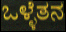
ಒಳ್ಳೆತನ